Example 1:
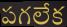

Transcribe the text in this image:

పగలేక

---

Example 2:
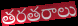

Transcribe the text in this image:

తరతరాలు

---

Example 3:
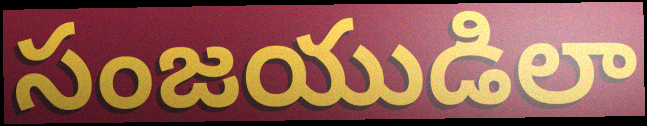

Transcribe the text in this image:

సంజయుడిలా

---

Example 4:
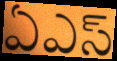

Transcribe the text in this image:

ఏఎస్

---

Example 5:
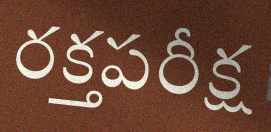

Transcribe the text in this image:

రక్తపరీక్ష